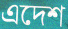
এদেশ